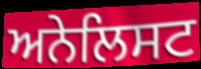
ਅਨੇਲਿਸਟ